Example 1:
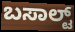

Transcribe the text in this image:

ಬಸಾಲ್ಟ್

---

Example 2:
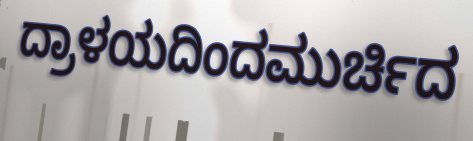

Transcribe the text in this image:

ದ್ರಾಳಯದಿಂದಮುರ್ಚಿದ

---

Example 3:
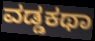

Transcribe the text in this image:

ವಡ್ಡಕಥಾ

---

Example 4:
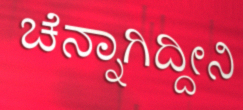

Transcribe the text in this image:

ಚೆನ್ನಾಗಿದ್ದೀನಿ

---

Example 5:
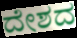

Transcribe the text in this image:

ದೇಶದ